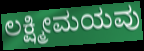
ಲಕ್ಷ್ಮೀಮಯವು